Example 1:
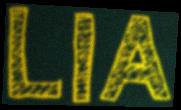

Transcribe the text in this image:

LIA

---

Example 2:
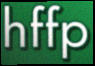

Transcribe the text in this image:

hffp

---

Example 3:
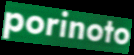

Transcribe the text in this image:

porinoto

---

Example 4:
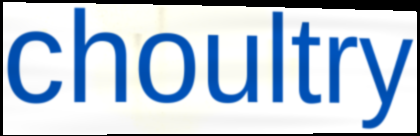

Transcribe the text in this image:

choultry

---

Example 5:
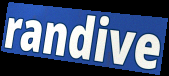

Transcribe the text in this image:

randive